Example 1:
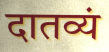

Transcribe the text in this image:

दातव्यं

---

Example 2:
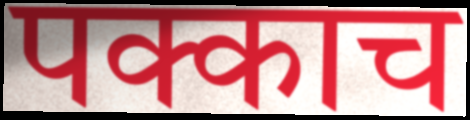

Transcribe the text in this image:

पक्काच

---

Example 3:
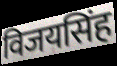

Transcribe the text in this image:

विजयसिंह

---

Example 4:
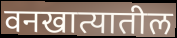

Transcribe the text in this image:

वनखात्यातील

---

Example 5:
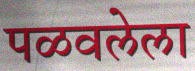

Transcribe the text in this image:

पळवलेला